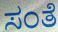
ಸಂತೆ